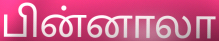
பின்னாலா